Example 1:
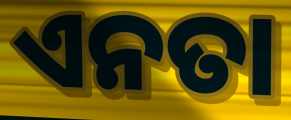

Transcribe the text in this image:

ଏନତା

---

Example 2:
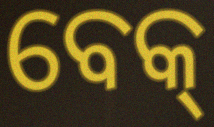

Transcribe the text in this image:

ବେକ୍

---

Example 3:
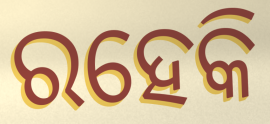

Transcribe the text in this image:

ରହେକି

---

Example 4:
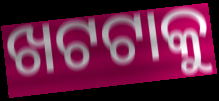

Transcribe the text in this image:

ଖଟଟାକୁ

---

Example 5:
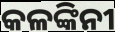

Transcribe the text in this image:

କଳଙ୍କିନୀ